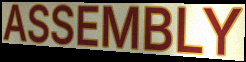
ASSEMBLY